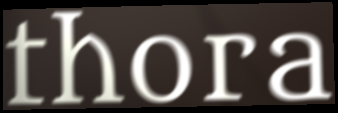
thora